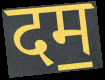
दम॒